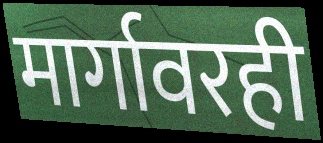
मार्गावरही